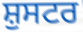
ਸ਼ੁਸਟਰ